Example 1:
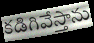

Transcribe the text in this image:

కడిగివేస్తాను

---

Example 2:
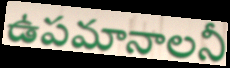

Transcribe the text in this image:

ఉపమానాలనీ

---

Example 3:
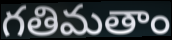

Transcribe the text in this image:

గతిమతాం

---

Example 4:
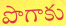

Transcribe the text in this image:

పొగాకు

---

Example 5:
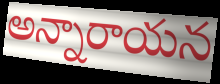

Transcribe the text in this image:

అన్నారాయన